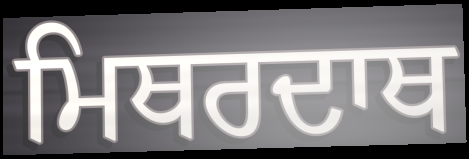
ਮਿਥਰਦਾਥ